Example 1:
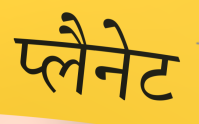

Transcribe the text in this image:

प्लैनेट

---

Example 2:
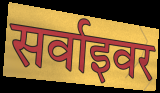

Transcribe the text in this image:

सर्वाइवर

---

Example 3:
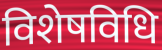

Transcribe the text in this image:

विशेषविधि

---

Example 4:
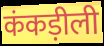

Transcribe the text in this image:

कंकड़ीली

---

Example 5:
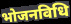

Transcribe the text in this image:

भोजनविधि